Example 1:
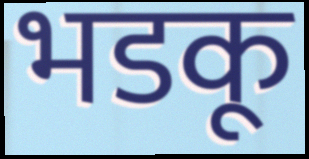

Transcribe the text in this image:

भडकू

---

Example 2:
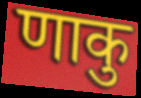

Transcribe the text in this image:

णाकु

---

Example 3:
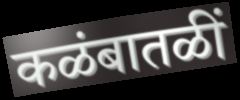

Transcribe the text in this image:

कळंबातळीं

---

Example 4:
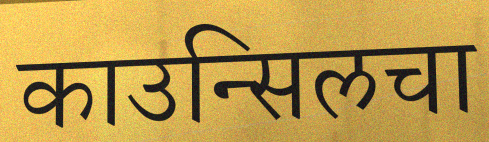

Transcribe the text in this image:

काउन्सिलचा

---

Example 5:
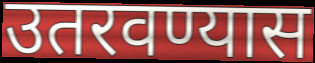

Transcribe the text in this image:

उतरवण्यास